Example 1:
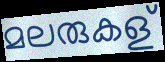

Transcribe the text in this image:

മലരുകള്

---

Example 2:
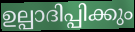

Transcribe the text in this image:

ഉല്പാദിപ്പിക്കും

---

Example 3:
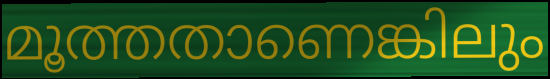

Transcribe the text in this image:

മൂത്തതാണെങ്കിലും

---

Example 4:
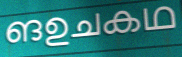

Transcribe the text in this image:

ങഉചകഥ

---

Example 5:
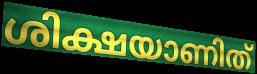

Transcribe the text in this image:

ശിക്ഷയാണിത്